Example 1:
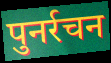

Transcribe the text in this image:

पुनर्रचन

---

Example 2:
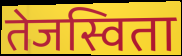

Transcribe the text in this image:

तेजस्विता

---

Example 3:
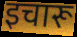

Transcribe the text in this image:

इचारू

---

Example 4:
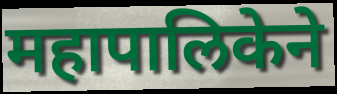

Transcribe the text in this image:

महापालिकेने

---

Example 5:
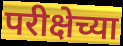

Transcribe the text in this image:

परीक्षेच्या